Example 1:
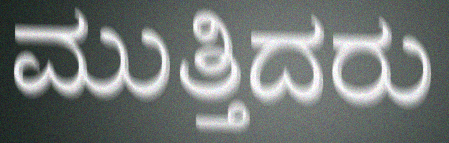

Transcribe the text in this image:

ಮುತ್ತಿದರು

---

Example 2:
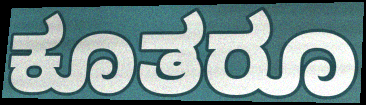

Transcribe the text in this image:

ಕೂತರೂ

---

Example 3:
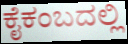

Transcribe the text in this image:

ಕೈಕಂಬದಲ್ಲಿ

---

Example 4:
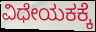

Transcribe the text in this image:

ವಿಧೇಯಕಕ್ಕೆ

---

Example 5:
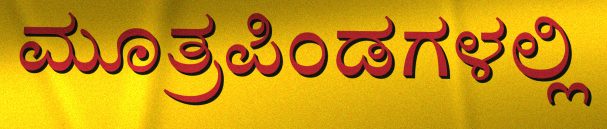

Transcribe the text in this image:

ಮೂತ್ರಪಿಂಡಗಳಲ್ಲಿ